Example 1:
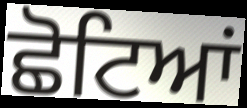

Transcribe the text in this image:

ਛੋਟਿਆਂ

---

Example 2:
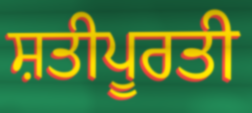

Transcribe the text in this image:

ਸ਼ਤੀਪੂਰਤੀ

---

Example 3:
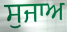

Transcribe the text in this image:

ਸੁਜਾਅ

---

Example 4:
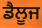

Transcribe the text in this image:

ਡੈਲੂਜ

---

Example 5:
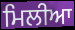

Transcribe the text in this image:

ਮਿਲੀਆ